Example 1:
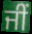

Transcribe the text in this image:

ਜੀਂ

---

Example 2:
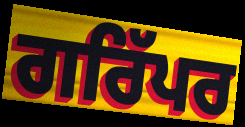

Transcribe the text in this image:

ਗਰਿੱਪਰ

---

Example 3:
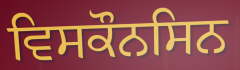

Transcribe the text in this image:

ਵਿਸਕੌਨਸਿਨ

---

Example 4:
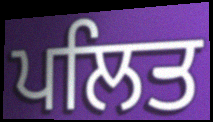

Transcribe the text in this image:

ਪਲਿਤ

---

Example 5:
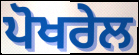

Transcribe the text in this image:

ਪੋਖਰੇਲ